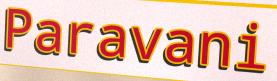
Paravani